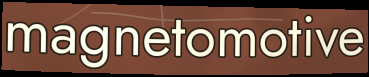
magnetomotive